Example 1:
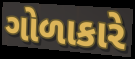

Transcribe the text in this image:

ગોળાકારે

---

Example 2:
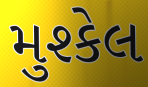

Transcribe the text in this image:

મુશ્કેલ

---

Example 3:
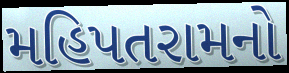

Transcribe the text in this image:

મહિપતરામનો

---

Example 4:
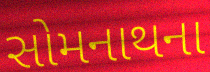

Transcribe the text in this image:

સોમનાથના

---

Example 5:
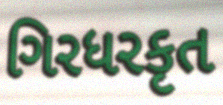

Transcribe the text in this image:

ગિરધરકૃત